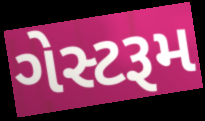
ગેસ્ટરૂમ